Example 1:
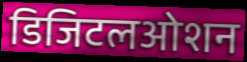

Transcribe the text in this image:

डिजिटलओशन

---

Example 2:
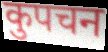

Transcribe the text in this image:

कुपचन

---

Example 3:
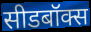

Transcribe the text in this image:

सीडबॉक्स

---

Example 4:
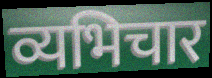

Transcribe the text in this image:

व्यभिचार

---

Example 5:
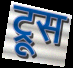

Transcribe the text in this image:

ट्रूस